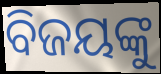
ବିଜୟଙ୍କୁ